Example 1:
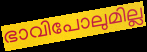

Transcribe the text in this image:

ഭാവിപോലുമില്ല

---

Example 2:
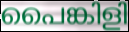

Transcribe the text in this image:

പൈങ്കിളി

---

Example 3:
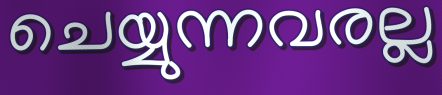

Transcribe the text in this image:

ചെയ്യുന്നവരല്ല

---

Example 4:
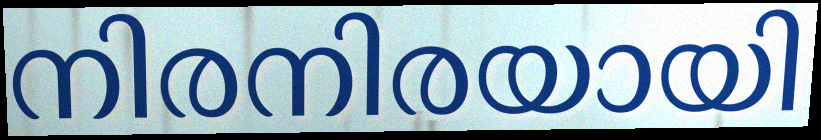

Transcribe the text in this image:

നിരനിരയായി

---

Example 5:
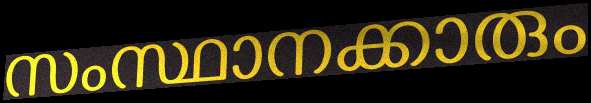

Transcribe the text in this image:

സംസ്ഥാനക്കാരും